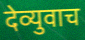
देव्युवाच